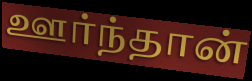
ஊர்ந்தான்